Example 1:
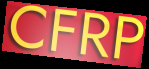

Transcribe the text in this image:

CFRP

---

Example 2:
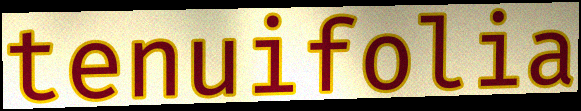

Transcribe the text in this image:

tenuifolia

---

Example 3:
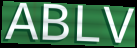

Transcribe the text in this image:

ABLV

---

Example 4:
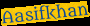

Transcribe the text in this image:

Aasifkhan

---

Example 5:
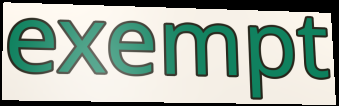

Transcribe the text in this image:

exempt